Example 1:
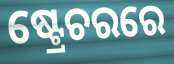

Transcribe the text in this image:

ଷ୍ଟ୍ରେଚରରେ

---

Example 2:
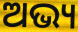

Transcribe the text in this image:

ଅଭ୍ୟ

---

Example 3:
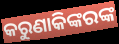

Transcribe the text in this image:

କରୁଣାକିଙ୍କରଙ୍କ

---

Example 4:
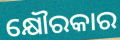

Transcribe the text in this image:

କ୍ଷୌରକାର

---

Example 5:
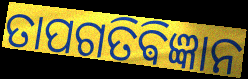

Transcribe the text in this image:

ତାପଗତିଵିଜ୍ଞାନ